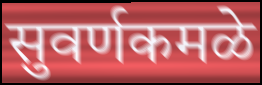
सुवर्णकमळे